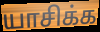
யாசிக்க